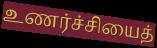
உணர்ச்சியைத்